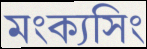
মংক্যসিং